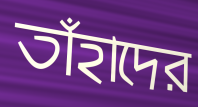
তাঁহাদের